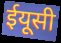
ईयूसी